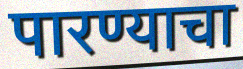
पारण्याचा